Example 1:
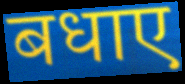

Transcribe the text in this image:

बधाए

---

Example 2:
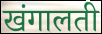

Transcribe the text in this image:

खंगालती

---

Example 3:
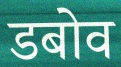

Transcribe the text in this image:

डबोव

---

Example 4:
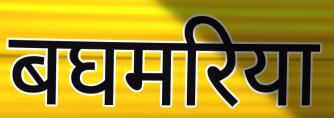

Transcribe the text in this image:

बघमरिया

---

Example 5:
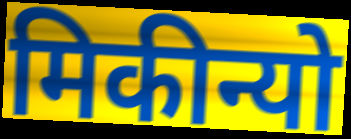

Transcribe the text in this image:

मिकीन्यो